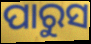
ପାରୁସ